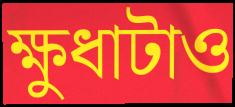
ক্ষুধাটাও